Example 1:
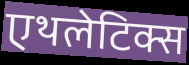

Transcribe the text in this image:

एथलेटिक्स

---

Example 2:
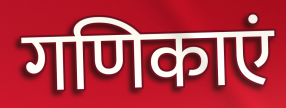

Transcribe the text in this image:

गणिकाएं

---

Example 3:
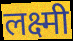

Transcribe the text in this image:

लक्ष्मी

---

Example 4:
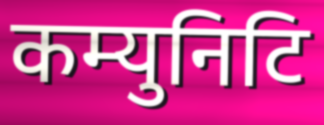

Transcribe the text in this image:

कम्युनिटि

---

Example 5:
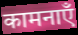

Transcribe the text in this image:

कामनाएँ